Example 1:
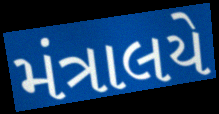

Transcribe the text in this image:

મંત્રાલયે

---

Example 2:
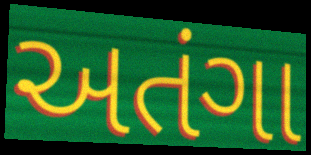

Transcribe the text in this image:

અતંગા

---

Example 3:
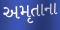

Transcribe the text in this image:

અમૃતાના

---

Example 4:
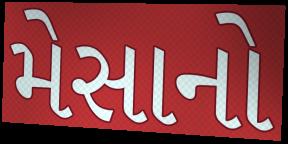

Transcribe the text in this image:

મેસાનો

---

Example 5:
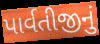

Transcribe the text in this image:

પાર્વતીજીનું